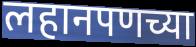
लहानपणच्या